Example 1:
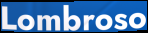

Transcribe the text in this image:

Lombroso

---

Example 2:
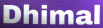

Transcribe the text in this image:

Dhimal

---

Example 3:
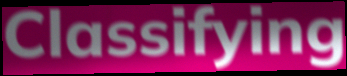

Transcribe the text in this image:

Classifying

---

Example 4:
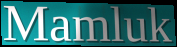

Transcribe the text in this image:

Mamluk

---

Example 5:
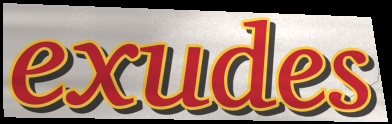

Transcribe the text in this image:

exudes